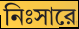
নিঃসারে